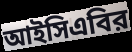
আইসিএবির